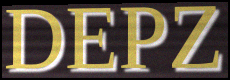
DEPZ